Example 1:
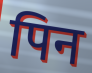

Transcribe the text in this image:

पिन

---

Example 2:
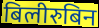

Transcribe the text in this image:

बिलीरुबिन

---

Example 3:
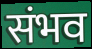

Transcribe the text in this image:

संभव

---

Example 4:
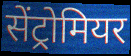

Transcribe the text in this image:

सेंट्रोमियर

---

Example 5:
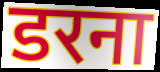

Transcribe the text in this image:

डरना